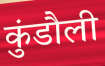
कुंडौली